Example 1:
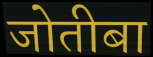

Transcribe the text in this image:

जोतीबा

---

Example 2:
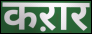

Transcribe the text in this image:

कऱार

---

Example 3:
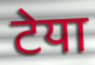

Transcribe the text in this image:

टेया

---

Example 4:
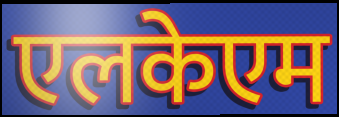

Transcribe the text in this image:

एलकेएम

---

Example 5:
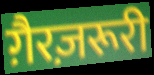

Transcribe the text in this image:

ग़ैरज़रूरी